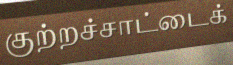
குற்றச்சாட்டைக்